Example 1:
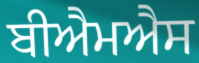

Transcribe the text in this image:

ਬੀਐਮਐਸ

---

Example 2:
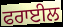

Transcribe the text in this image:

ਫਰਾਈਲ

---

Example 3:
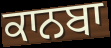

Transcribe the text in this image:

ਕਾਨਬਾ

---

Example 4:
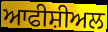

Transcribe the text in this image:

ਆਫੀਸ਼ੀਅਲ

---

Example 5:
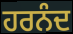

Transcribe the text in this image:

ਹਰਨੰਦ